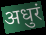
अधुरं